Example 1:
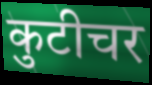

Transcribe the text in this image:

कुटीचर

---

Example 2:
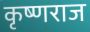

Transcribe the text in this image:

कृष्णराज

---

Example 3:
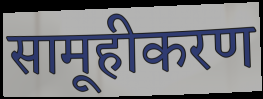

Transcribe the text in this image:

सामूहीकरण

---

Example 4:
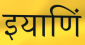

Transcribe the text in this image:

इयाणिं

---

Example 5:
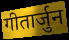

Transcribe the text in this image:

गीतार्जुन